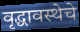
वृद्धावस्थेचे